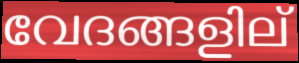
വേദങ്ങളില്